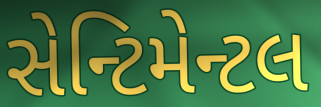
સેન્ટિમેન્ટલ